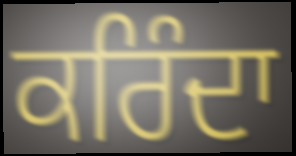
ਕਰਿੰਦਾ